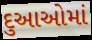
દુઆઓમાં